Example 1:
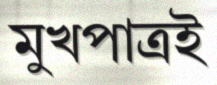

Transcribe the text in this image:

মুখপাত্রই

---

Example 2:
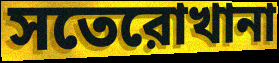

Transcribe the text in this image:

সতেরোখানা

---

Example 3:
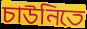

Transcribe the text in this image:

চাউনিতে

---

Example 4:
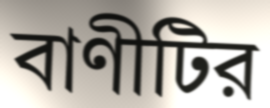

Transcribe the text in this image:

বাণীটির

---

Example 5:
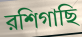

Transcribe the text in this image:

রশিগাছি